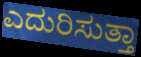
ಎದುರಿಸುತ್ತಾ